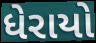
ધેરાયો